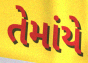
તેમાંયે